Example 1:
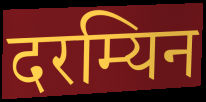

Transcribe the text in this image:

दरम्यिन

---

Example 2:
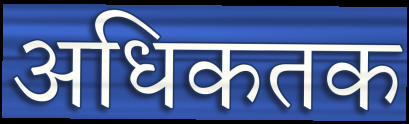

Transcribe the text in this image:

अधिकतक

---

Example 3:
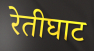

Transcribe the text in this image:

रेतीघाट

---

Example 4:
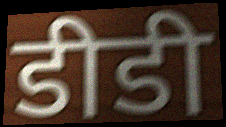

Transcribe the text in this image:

डीडी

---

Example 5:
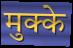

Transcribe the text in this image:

मुक्‍के